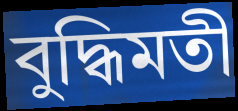
বুদ্ধিমতী